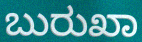
ಬುರುಖಾ